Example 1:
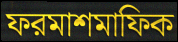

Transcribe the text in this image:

ফরমাশমাফিক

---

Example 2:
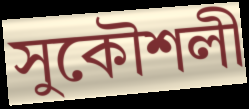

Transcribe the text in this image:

সুকৌশলী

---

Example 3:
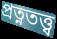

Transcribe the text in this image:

প্রত্নতত্ত্ব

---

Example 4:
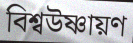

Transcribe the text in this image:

বিশ্বউষ্ণায়ণ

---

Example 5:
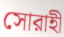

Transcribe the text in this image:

সোরাহী